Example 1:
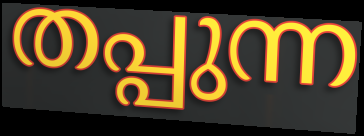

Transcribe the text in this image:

തപ്പുന്ന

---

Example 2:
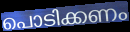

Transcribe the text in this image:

പൊടിക്കണം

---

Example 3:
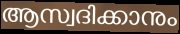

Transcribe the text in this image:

ആസ്വദിക്കാനും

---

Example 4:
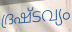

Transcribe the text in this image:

ദ്രഷ്ടവ്യം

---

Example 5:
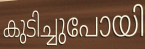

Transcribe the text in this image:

കുടിച്ചുപോയി